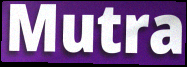
Mutra